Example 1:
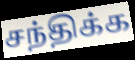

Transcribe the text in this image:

சந்திக்க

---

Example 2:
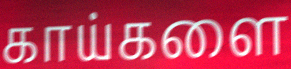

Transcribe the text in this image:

காய்களை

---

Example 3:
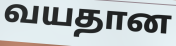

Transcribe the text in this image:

வயதான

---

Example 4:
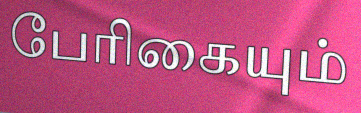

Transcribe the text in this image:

பேரிகையும்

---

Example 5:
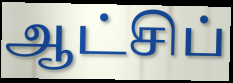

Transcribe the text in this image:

ஆட்சிப்